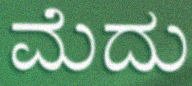
ಮೆದು